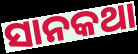
ସାନକଥା